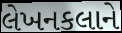
લેખનકલાને